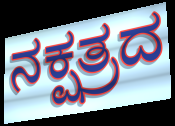
ನಕ್ಷತ್ರದ